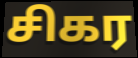
சிகர